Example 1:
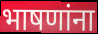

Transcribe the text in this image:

भाषणांना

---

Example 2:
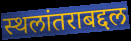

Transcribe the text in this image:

स्थलांतराबद्दल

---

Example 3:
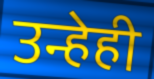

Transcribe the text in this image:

उन्हेही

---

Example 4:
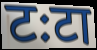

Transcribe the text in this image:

टःटा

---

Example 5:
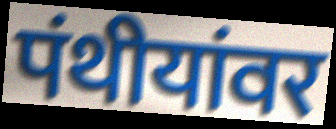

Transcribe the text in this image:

पंथीयांवर